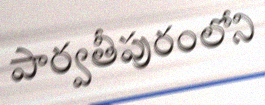
పార్వతీపురంలోని